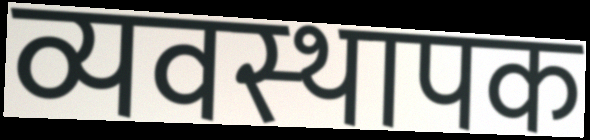
व्यवस्थापक